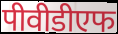
पीवीडीएफ